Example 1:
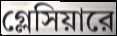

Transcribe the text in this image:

গ্লেসিয়ারে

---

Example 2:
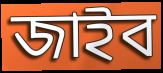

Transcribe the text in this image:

জাইব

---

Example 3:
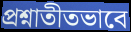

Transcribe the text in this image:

প্রশ্নাতীতভাবে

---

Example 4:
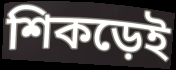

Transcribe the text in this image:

শিকড়েই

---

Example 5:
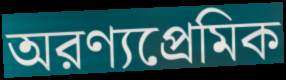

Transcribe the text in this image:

অরণ্যপ্রেমিক